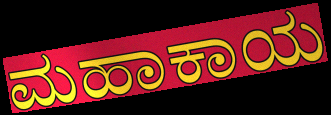
ಮಹಾಕಾಯ